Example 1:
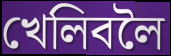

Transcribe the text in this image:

খেলিবলৈ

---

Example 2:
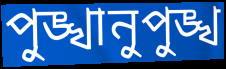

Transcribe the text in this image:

পুঙ্খানুপুঙ্খ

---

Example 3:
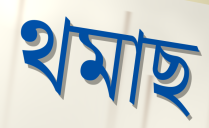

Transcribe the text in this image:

থমাছ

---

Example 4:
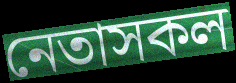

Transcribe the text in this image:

নেতাসকল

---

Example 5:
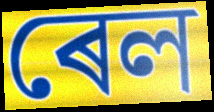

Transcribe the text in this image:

ৰেল